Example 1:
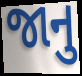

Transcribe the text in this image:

જાનુ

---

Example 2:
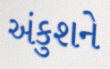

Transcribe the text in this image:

અંકુશને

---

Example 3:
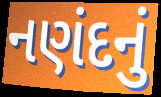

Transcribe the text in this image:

નણંદનું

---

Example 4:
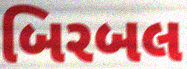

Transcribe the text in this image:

બિરબલ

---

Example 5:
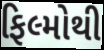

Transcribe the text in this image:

ફિલ્મોથી